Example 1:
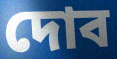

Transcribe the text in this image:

দোব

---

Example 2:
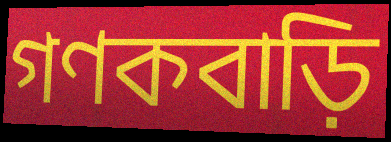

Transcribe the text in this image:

গণকবাড়ি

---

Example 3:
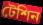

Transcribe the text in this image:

টেশিন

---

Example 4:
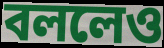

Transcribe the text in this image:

বললেও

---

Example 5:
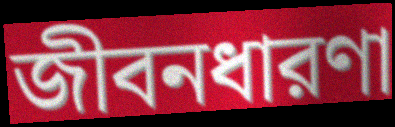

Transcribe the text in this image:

জীবনধারণা